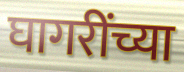
घागरींच्या